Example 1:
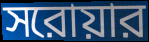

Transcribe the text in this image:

সরোয়ার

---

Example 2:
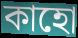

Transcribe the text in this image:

কাহো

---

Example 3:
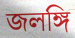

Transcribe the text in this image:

জলঙ্গি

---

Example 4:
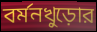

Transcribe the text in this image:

বর্মনখুড়োর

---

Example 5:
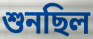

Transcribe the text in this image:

শুনছিল